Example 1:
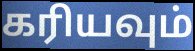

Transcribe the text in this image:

கரியவும்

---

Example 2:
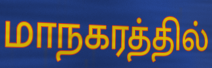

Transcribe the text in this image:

மாநகரத்தில்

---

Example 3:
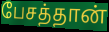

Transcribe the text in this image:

பேசத்தான்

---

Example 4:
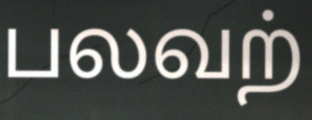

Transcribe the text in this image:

பலவற்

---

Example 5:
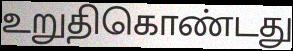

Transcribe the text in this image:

உறுதிகொண்டது